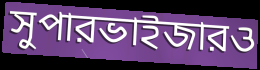
সুপারভাইজারও